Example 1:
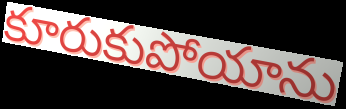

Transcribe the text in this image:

కూరుకుపోయాను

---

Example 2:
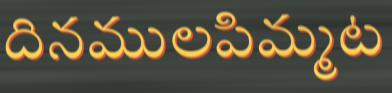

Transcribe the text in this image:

దినములపిమ్మట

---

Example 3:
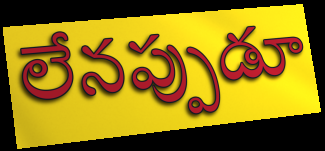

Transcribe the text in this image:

లేనప్పుడూ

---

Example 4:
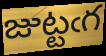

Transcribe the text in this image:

జుట్టఁగ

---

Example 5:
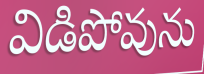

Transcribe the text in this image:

విడిపోవును